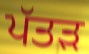
ਪੱਤਡ਼